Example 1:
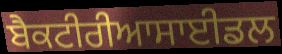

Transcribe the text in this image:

ਬੈਕਟੀਰੀਆਸਾਈਡਲ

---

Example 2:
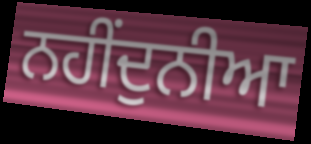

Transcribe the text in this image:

ਨਹੀਂਦੁਨੀਆ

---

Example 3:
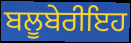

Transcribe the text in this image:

ਬਲੂਬੇਰੀਇਹ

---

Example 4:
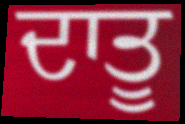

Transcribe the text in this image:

ਦਾਤੂ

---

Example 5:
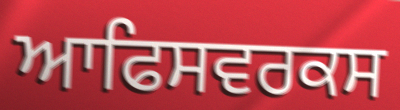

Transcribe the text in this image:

ਆਫਿਸਵਰਕਸ